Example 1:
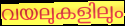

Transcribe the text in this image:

വയലുകളിലും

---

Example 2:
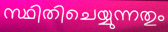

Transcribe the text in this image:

സ്ഥിതിചെയ്യുന്നതും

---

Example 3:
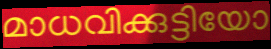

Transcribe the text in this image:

മാധവിക്കുട്ടിയോ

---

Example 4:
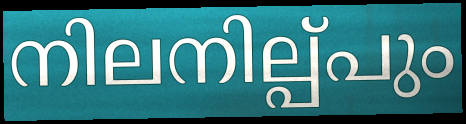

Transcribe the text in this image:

നിലനില്പ്പും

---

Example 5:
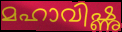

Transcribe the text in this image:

മഹാവിഷ്ണു